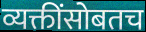
व्यक्तींसोबतच